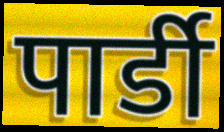
पार्डी